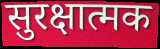
सुरक्षात्मक